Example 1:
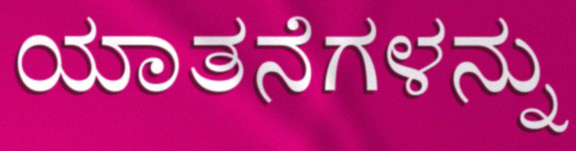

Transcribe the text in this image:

ಯಾತನೆಗಳನ್ನು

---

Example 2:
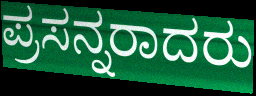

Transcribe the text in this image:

ಪ್ರಸನ್ನರಾದರು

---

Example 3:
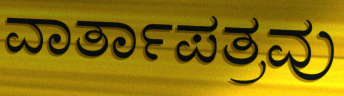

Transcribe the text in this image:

ವಾರ್ತಾಪತ್ರವು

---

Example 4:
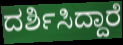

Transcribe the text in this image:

ದರ್ಶಿಸಿದ್ದಾರೆ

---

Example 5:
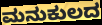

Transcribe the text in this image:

ಮನುಕುಲದ